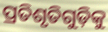
ପ୍ରତିଶୃତିଗୁଡ଼ିକୁ